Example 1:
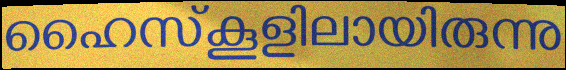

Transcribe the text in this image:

ഹൈസ്‌കൂളിലായിരുന്നു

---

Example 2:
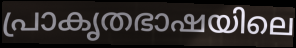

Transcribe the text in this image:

പ്രാകൃതഭാഷയിലെ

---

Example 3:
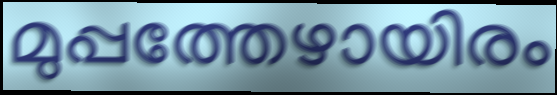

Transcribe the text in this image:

മുപ്പത്തേഴായിരം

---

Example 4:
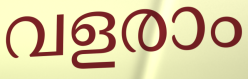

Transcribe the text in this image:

വളരാം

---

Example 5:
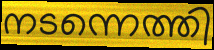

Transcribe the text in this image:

നടന്നെത്തി